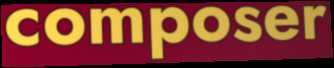
composer